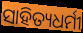
ସାହିତ୍ୟଧର୍ମୀ